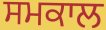
ਸਮਕਾਲ